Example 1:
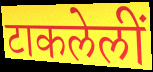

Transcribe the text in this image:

टाकलेलीं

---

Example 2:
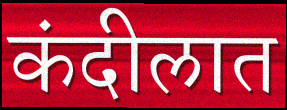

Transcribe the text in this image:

कंदीलात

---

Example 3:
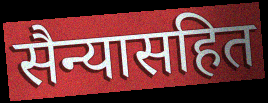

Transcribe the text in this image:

सैन्यासहित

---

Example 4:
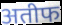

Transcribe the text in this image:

अतीफ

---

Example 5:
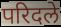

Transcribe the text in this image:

परिदले